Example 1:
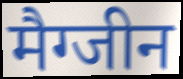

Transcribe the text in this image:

मैग्जीन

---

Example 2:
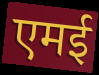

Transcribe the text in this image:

एमई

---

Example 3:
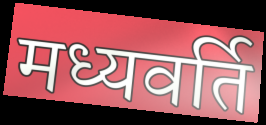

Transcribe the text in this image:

मध्यवर्ति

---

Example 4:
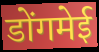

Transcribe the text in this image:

डोंगमेई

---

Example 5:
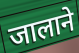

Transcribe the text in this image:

जालाने